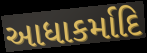
આધાકર્માદિ